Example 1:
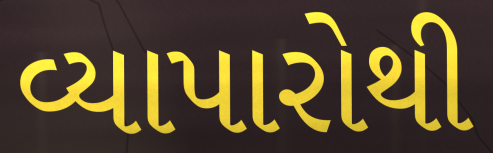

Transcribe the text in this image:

વ્યાપારોથી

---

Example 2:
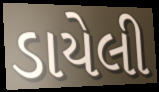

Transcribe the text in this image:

ડાયેલી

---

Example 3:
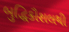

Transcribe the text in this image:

બુદ્ધિકૌશલથી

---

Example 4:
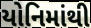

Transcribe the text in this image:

યોનિમાંથી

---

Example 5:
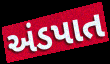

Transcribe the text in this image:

અંડપાત